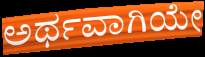
ಅರ್ಥವಾಗಿಯೇ